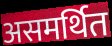
असमर्थित